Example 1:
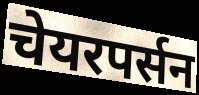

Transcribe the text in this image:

चेयरपर्सन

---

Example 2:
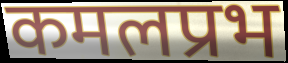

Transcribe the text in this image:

कमलप्रभ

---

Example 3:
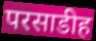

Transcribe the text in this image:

परसाडीह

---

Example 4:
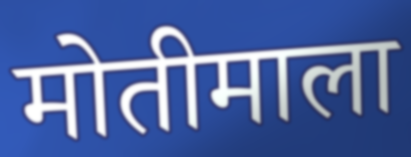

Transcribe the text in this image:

मोतीमाला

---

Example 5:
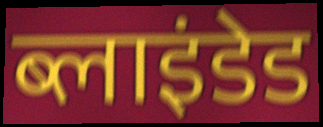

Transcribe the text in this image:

ब्लाइंडेड